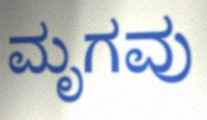
ಮೃಗವು